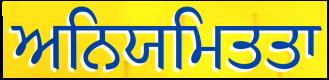
ਅਨਿਯਮਿਤਤਾ